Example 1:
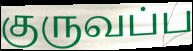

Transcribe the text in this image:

குருவப்ப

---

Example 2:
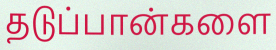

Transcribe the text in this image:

தடுப்பான்களை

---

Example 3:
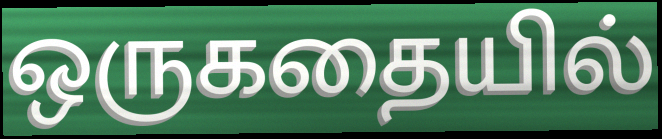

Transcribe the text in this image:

ஒருகதையில்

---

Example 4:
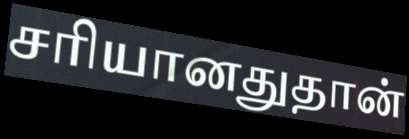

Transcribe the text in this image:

சரியானதுதான்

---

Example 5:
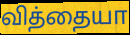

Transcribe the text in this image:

வித்தையா